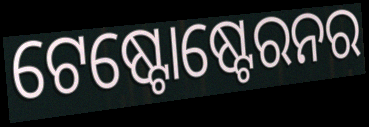
ଟେଷ୍ଟୋଷ୍ଟେରନର